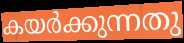
കയർക്കുന്നതു